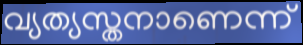
വ്യത്യസ്തനാണെന്ന്